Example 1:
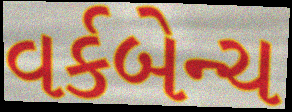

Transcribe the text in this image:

વર્કબેન્ચ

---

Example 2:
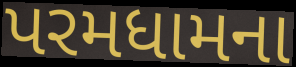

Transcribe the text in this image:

પરમધામના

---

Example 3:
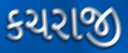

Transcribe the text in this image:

કચરાજી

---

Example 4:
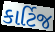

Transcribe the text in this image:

કાર્ટિજ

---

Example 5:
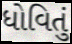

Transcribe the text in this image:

ધોવિતું